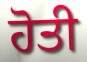
ਹੋਤੀ